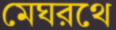
মেঘরথে